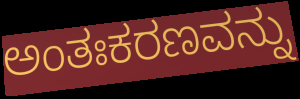
ಅಂತಃಕರಣವನ್ನು